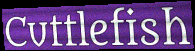
Cuttlefish